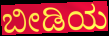
ಬೀಡಿಯ